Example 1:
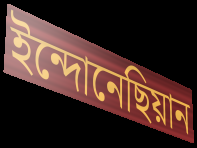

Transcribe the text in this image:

ইন্দোনেছিয়ান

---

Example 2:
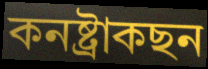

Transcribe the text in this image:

কনষ্ট্ৰাকছন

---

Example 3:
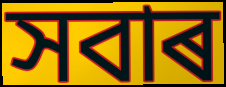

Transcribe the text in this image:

সবাৰ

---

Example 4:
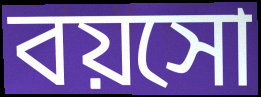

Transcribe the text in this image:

বয়সো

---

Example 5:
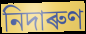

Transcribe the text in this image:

নিদাৰুণ